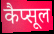
कैप्सूल